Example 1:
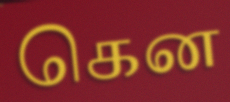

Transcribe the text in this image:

கென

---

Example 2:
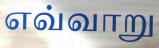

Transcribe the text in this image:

எவ்வாறு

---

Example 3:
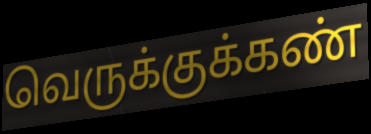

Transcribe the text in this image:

வெருக்குக்கண்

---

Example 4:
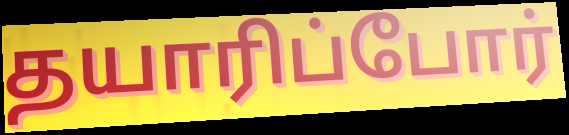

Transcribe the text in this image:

தயாரிப்போர்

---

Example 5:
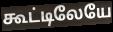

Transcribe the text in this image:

கூட்டிலேயே